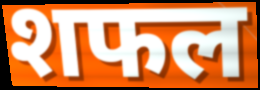
शफल